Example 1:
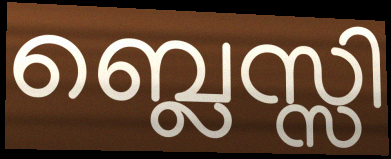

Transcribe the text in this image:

ബ്ലെസ്സി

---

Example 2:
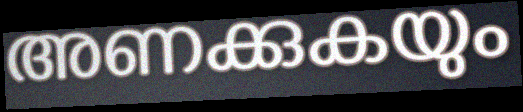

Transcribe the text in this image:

അണക്കുകയും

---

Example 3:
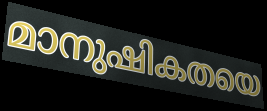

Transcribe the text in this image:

മാനുഷികതയെ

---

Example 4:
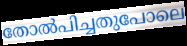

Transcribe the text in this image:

തോൽപിച്ചതുപോലെ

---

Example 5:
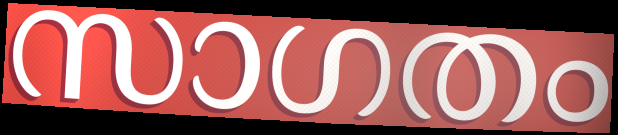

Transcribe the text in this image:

സാഗതം